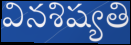
వినశిష్యతి